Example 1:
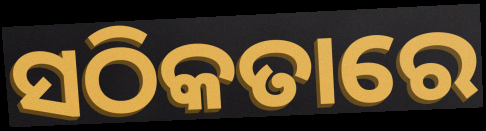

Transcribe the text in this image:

ସଠିକତାରେ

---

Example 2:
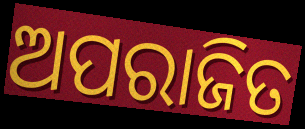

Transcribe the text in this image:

ଅପରାଜିତ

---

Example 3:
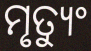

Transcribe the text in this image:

ମୃତ୍ୟୁଂ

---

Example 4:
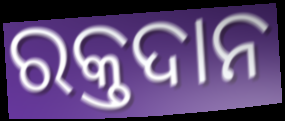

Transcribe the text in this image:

ରକ୍ତଦାନ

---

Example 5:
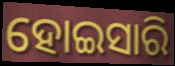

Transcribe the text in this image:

ହୋଇସାରି